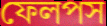
ফেলপস